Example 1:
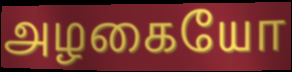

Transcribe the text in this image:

அழகையோ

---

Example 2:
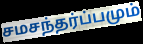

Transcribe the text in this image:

சமசந்தர்ப்பமும்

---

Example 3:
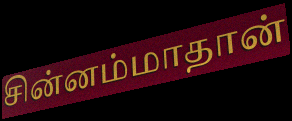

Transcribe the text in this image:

சின்னம்மாதான்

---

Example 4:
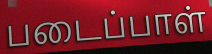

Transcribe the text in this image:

படைப்பாள்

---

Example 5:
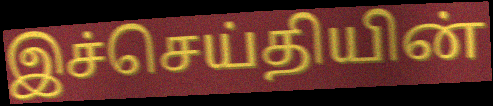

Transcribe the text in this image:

இச்செய்தியின்